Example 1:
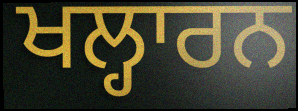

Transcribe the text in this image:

ਖਲ੍ਹਾਰਨ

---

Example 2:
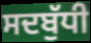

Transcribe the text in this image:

ਸਦਬੁੱਧੀ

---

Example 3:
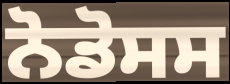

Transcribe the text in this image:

ਨੋਡੋਸਸ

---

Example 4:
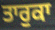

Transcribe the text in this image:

ਤਾਰੁਕਾ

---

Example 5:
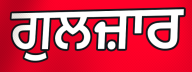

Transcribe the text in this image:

ਗੁਲਜ਼ਾਰ